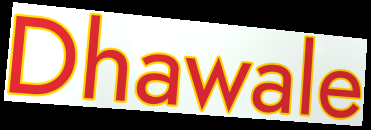
Dhawale